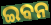
ଇବନ